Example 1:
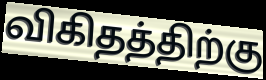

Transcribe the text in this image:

விகிதத்திற்கு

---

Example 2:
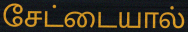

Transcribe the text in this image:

சேட்டையால்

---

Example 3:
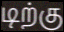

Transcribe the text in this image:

டிற்கு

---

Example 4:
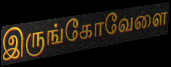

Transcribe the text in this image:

இருங்கோவேளை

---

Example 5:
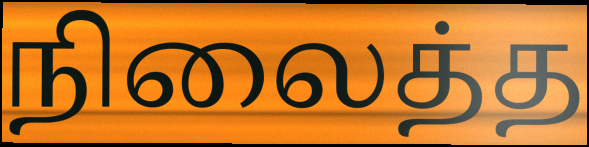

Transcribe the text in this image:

நிலைத்த